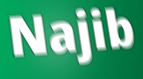
Najib